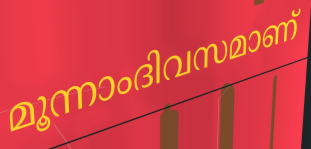
മൂന്നാംദിവസമാണ്